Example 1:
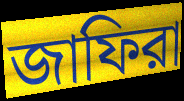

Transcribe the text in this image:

জাফিরা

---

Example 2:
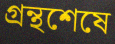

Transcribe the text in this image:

গ্রন্থশেষে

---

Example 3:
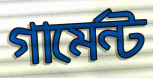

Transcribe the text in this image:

গার্মেন্ট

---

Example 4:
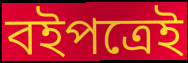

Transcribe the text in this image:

বইপত্রেই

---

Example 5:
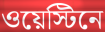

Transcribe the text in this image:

ওয়েস্টিনে